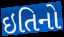
ઇતિનો